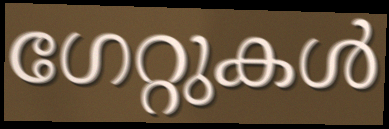
ഗേറ്റുകൾ